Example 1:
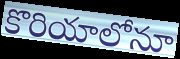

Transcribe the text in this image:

కొరియాలోనూ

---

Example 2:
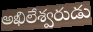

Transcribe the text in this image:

అఖిలేశ్వరుడు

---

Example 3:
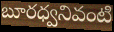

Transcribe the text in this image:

బూరధ్వనివంటి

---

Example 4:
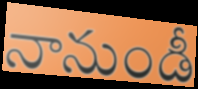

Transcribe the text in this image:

నానుండీ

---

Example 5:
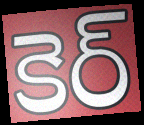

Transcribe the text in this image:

కెర్